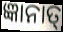
ଜ୍ଞାନାତ୍